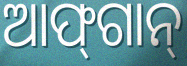
ଆଫ୍‌ଗାନ୍